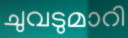
ചുവടുമാറി